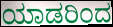
ಯಾಡರಿಂದ